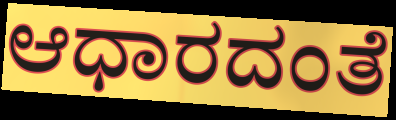
ಆಧಾರದಂತೆ